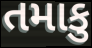
તમાકુ